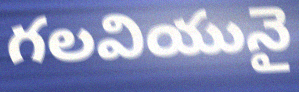
గలవియునై